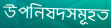
উপনিষদসমূহত